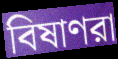
বিষাণরা